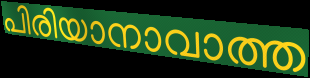
പിരിയാനാവാത്ത